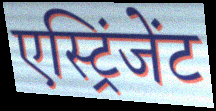
एस्ट्रिंजेंट